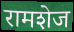
रामशेज